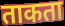
ताकता